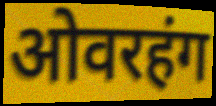
ओवरहंग